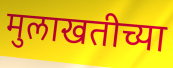
मुलाखतीच्या